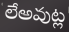
లేఅవుట్ల